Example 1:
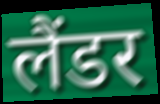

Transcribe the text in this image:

लैंडर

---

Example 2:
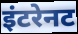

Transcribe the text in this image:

इंटरेनट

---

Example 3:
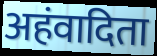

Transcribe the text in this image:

अहंवादिता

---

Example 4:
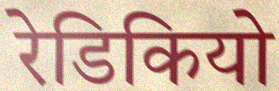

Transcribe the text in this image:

रेडिकियो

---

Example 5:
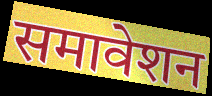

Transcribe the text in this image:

समावेशन